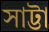
সাট্টা